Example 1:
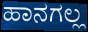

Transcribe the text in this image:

ಹಾನಗಲ್ಲ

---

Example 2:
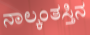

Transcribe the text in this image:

ನಾಲ್ಕಂತಸ್ತಿನ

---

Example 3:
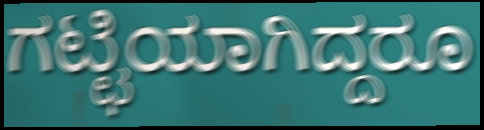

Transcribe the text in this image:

ಗಟ್ಟಿಯಾಗಿದ್ದರೂ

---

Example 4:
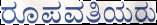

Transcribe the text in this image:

ರೂಪವತಿಯರು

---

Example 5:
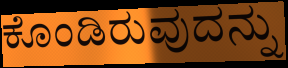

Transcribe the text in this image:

ಕೊಂಡಿರುವುದನ್ನು